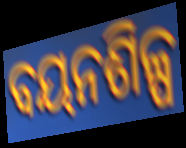
ବୟନଶିଳ୍ପ